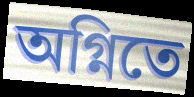
অগ্নিতে